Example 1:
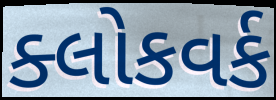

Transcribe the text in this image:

ક્લોકવર્ક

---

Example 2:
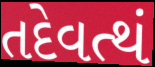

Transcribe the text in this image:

તદેવત્થં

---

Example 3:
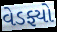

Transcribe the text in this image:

વેડફ્યો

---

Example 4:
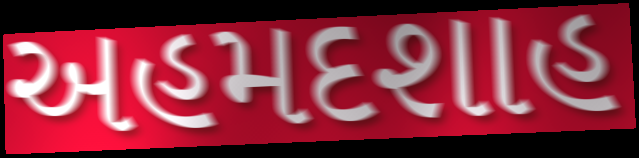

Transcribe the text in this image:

અહમદશાહ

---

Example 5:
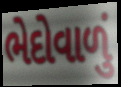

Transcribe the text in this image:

ભેદોવાળું